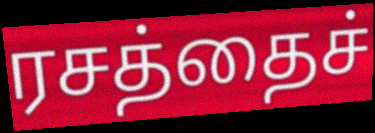
ரசத்தைச்